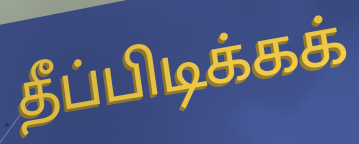
தீப்பிடிக்கக்